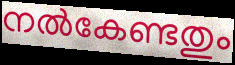
നൽകേണ്ടതും